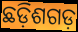
ଛଡ଼ିଶଗଡ଼